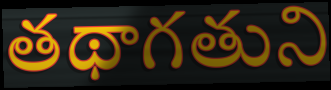
తథాగతుని